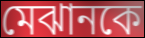
মেঝানকে